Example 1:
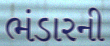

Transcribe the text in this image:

ભંડારની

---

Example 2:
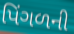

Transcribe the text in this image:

પિંગળની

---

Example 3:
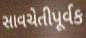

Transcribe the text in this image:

સાવચેતીપૂર્વક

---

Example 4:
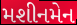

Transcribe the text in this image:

મશીનમેન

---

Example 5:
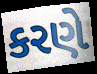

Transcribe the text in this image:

કરણે